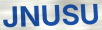
JNUSU